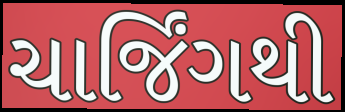
ચાર્જિંગથી